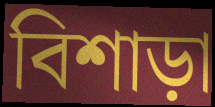
বিশাড়া